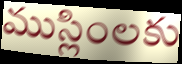
ముస్లింలకు